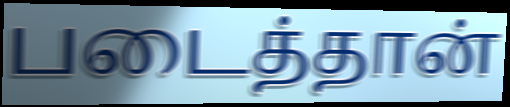
படைத்தான்